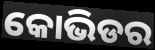
କୋଭିଡର